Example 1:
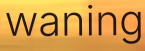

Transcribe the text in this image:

waning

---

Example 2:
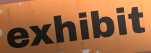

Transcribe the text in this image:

exhibit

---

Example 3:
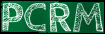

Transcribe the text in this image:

PCRM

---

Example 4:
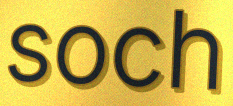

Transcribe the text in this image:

soch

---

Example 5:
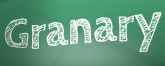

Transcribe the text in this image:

Granary